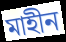
মাহীন